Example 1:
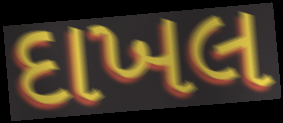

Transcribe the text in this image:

દાખલ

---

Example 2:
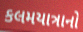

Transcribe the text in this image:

કલમયાત્રાનો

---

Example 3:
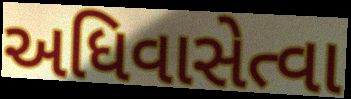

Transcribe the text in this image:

અધિવાસેત્વા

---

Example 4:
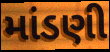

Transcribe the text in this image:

માંડણી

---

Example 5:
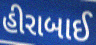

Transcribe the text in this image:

હીરાબાઈ